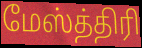
மேஸ்த்திரி